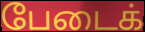
பேடைக்